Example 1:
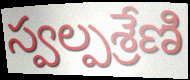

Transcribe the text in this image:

స్వల్పశ్రేణి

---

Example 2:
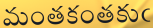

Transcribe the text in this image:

మంతకంతకుఁ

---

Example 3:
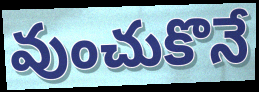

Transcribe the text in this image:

వుంచుకొనే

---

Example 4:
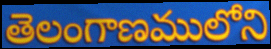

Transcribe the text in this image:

తెలంగాణములోని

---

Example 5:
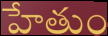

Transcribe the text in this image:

హేతుం